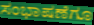
ಸಂಭಾಷಣೆಗೂ